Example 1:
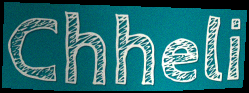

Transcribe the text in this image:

Chheli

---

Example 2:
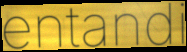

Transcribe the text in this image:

entandi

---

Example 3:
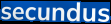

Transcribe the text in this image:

secundus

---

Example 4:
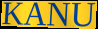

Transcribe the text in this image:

KANU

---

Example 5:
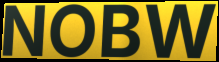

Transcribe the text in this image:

NOBW